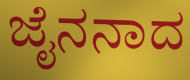
ಜೈನನಾದ